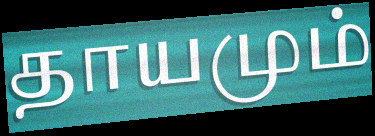
தாயமும்